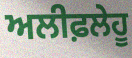
ਅਲੀਫ਼ਲੇਹੂ